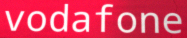
vodafone